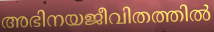
അഭിനയജീവിതത്തിൽ